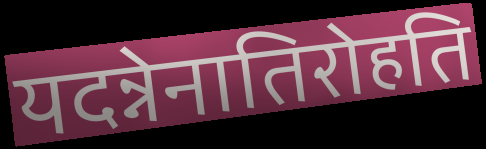
यदन्नेनातिरोहति